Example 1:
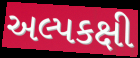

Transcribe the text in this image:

અલ્પકક્ષી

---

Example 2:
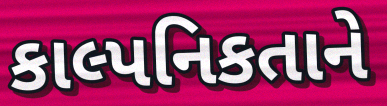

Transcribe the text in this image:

કાલ્પનિકતાને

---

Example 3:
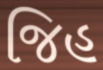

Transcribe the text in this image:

જિહ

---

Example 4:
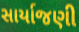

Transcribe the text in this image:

સાર્યાજણી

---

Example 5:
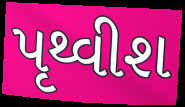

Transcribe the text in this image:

પૃથ્વીશ